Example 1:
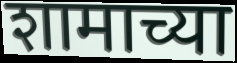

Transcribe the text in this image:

शामाच्या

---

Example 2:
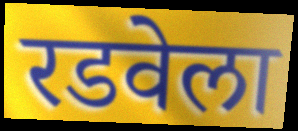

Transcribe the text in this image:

रडवेला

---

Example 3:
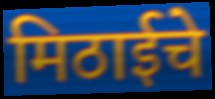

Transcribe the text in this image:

मिठाईचे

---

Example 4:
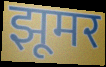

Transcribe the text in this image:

झूमर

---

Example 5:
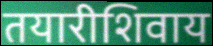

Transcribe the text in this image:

तयारीशिवाय